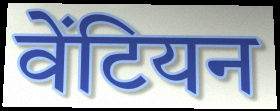
वेंटियन